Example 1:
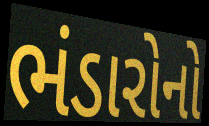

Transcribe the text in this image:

ભંડારોનો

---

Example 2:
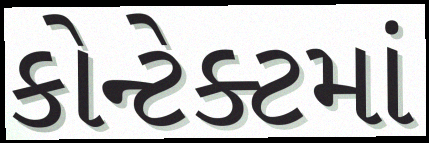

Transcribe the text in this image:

કોન્ટેક્ટમાં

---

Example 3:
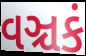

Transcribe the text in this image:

વઞ્ચકં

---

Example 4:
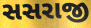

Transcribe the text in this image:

સસરાજી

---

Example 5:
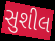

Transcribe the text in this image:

સુશીલ